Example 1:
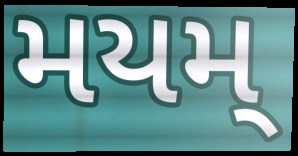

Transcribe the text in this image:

મયમ્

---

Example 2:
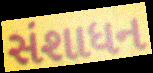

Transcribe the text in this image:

સંશાધન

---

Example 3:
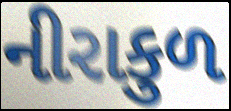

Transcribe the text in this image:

નીરાકુળ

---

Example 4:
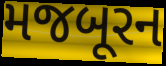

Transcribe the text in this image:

મજબૂરન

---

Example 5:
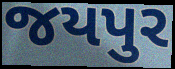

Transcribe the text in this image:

જયપુર